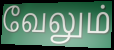
வேலும்